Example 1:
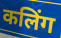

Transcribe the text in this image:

कलिंग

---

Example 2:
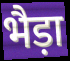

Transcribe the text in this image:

भैड़ा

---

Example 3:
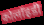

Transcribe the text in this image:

कोलॉइडी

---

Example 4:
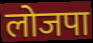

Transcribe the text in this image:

लोजपा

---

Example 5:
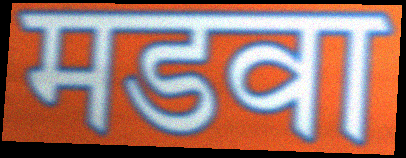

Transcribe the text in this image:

मडवा